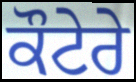
ਕੌਟੇਰੇ